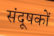
संदूषकों